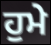
ਹੁਮੇ